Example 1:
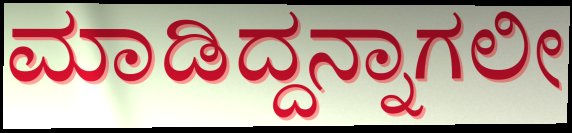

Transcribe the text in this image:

ಮಾಡಿದ್ದನ್ನಾಗಲೀ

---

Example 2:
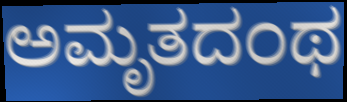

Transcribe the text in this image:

ಅಮೃತದಂಥ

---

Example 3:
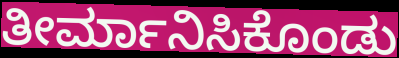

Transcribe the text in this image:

ತೀರ್ಮಾನಿಸಿಕೊಂಡು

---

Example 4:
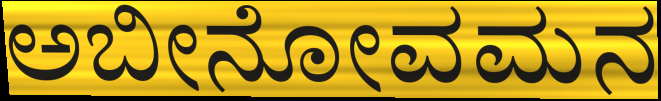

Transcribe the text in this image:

ಅಬೀನೋವಮನ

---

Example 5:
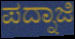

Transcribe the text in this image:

ಪದ್ನಾಜಿ